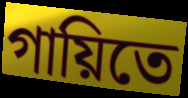
গায়িতে